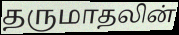
தருமாதலின்